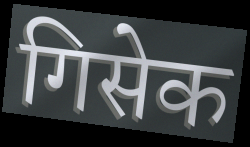
गिसेक